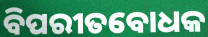
ବିପରୀତବୋଧକ